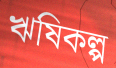
ঋষিকল্প